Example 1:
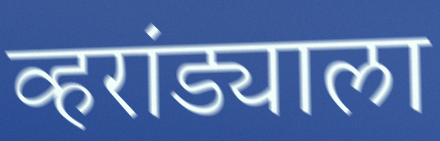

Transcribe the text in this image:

व्हरांड्याला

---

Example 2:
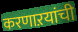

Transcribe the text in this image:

करणाऱयांची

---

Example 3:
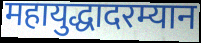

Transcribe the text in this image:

महायुद्धादरम्यान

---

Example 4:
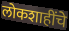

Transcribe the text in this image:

लोकशाहींचे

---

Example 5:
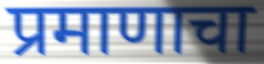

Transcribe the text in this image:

प्रमाणाचा